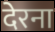
देरना